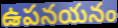
ఉపనయనం